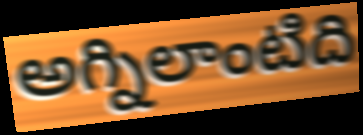
అగ్నిలాంటిది